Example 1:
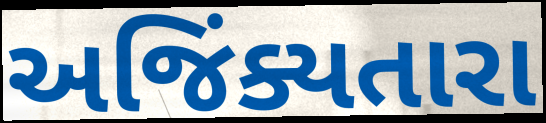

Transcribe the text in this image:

અજિંક્યતારા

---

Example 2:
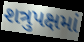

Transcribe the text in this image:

શત્રુપક્ષમાં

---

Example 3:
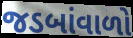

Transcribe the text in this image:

જડબાંવાળો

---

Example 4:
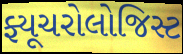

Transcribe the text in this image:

ફ્યૂચરોલોજિસ્ટ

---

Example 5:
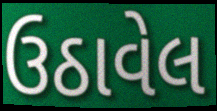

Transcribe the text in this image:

ઉઠાવેલ